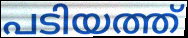
പടിയത്ത്